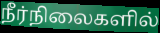
நீர்நிலைகளில்